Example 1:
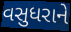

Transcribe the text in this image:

વસુધરાને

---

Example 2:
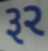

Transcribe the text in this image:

રૂર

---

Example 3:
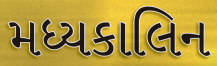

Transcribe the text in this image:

મધ્યકાલિન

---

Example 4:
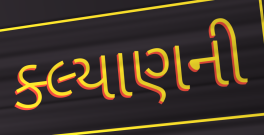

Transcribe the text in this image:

ક્લ્યાણની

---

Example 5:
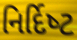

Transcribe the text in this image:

નિર્દિષ્‍ટ